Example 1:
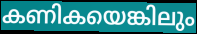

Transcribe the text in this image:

കണികയെങ്കിലും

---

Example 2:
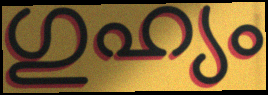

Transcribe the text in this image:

ഗുഹ്യം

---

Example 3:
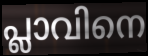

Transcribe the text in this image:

പ്ലാവിനെ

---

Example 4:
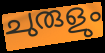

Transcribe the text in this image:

ചുരുളും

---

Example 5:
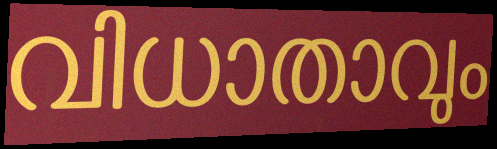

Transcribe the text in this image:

വിധാതാവും